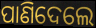
ପାଣିଦେଲେ